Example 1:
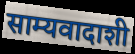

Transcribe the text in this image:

साम्यवादाशी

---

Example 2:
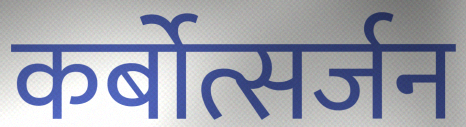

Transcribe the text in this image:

कर्बोत्सर्जन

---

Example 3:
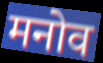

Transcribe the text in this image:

मनोव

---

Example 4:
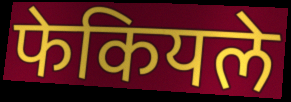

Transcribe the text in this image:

फेकियले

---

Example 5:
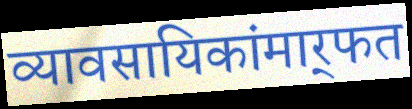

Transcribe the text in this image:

व्यावसायिकांमार्फत